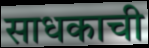
साधकाची